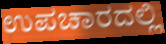
ಉಪಚಾರದಲ್ಲಿ